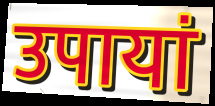
उपायां